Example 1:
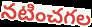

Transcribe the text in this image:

నటించగల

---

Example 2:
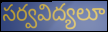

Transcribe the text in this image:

సర్వవిద్యలూ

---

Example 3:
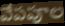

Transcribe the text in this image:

వేపపూల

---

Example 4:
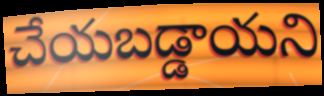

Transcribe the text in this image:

చేయబడ్డాయని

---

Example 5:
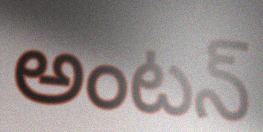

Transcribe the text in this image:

అంటన్